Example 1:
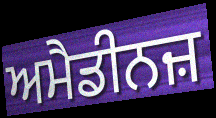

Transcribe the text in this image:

ਅਮੈਡੀਨਜ਼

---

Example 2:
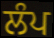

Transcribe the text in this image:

ਲੰਪ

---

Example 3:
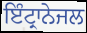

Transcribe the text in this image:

ਇੰਟ੍ਰਾਨੇਜਲ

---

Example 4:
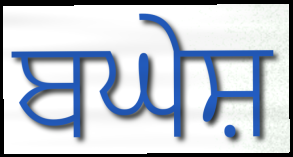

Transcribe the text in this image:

ਬਘੇਸ਼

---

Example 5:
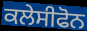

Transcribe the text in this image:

ਕਲੇਸੀਫੋਨ